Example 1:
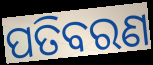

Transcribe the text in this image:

ପତିବରଣ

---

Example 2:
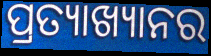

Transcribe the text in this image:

ପ୍ରତ୍ୟାଖ୍ୟାନର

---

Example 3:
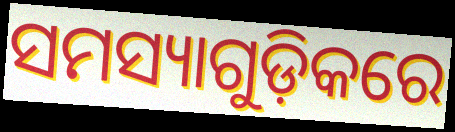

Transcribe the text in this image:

ସମସ୍ୟାଗୁଡ଼ିକରେ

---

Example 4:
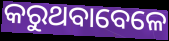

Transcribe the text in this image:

କରୁଥବାବେଳେ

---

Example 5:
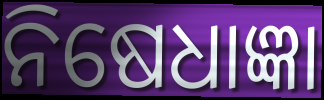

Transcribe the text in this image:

ନିଷେଧାଜ୍ଞା